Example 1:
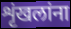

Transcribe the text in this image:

शृंखलांना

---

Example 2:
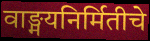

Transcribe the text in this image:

वाङ्मयनिर्मितीचे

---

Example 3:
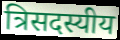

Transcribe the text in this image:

त्रिसदस्यीय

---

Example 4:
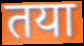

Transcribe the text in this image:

तया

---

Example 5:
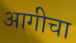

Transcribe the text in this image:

आगीचा